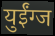
युईंग्ज